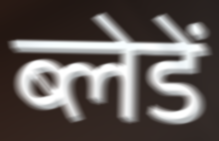
ब्लेडें